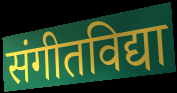
संगीतविद्या